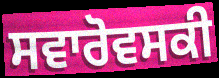
ਸਵਾਰੋਵਸਕੀ